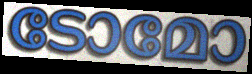
ടോമോ